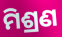
ମିଶ୍ରଣ